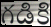
గడికి